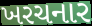
ખરચનાર